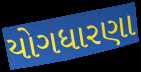
યોગધારણા